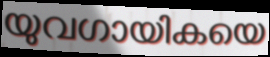
യുവഗായികയെ